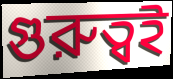
গুৰুত্বই